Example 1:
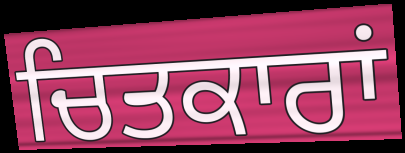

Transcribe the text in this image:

ਚਿਤਕਾਰਾਂ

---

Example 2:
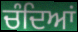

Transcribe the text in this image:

ਚੰਦਿਆਂ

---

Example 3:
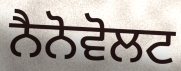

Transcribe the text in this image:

ਨੈਨੋਵੋਲਟ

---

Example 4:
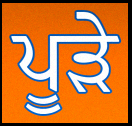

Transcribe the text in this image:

ਪੂੜੇ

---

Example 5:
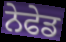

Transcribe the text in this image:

ਨੇਫੇਡ